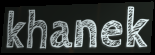
khanek